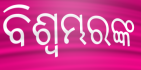
ବିଶ୍ୱମ୍ଭରଙ୍କ